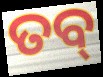
ତବ୍